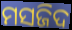
ମସଜିଦ